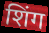
शिंग